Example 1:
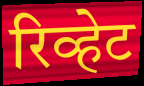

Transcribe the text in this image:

रिव्हेट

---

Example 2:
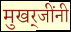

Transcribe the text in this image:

मुखर्जींनी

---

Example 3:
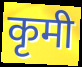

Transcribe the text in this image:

कृमी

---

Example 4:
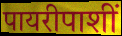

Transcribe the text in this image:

पायरीपाशीं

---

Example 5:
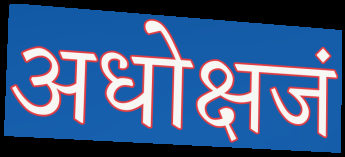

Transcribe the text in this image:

अधोक्षजं